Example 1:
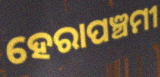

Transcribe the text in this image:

ହେରାପଞ୍ଚମୀ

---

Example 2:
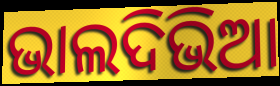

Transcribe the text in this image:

ଭାଲଦିଭିଆ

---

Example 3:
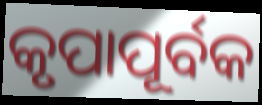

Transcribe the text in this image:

କୃପାପୂର୍ବକ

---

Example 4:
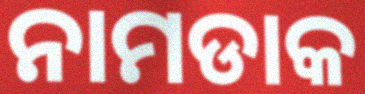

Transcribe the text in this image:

ନାମଡାକ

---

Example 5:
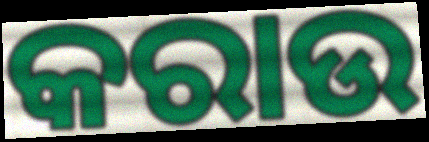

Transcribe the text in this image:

କରାଉ